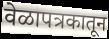
वेळापत्रकातून